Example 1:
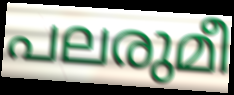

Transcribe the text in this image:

പലരുമീ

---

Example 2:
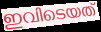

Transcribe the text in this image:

ഇവിടെയത്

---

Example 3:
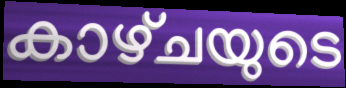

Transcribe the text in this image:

കാഴ്‌ചയുടെ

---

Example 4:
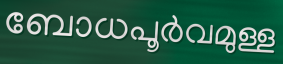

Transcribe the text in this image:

ബോധപൂർവമുള്ള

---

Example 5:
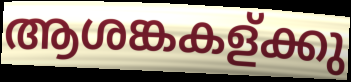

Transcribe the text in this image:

ആശങ്കകള്ക്കു